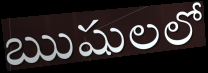
ఋషులలో